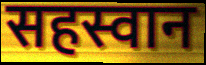
सहस्वान